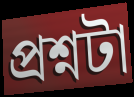
প্রশ্নটা